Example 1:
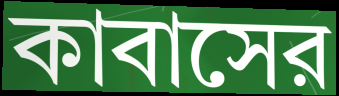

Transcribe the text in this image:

কাবাসের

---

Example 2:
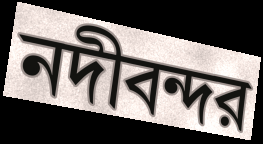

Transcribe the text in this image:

নদীবন্দর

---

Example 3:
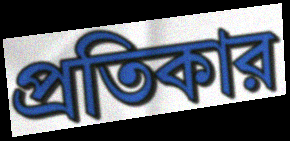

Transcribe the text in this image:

প্রতিকার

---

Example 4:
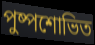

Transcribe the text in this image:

পুষ্পশোভিত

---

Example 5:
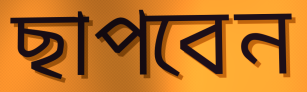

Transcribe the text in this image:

ছাপবেন